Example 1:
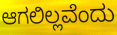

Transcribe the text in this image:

ಆಗಲಿಲ್ಲವೆಂದು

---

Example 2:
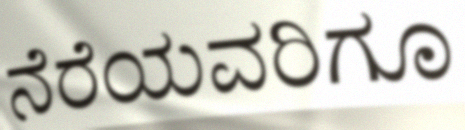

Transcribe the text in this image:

ನೆರೆಯವರಿಗೂ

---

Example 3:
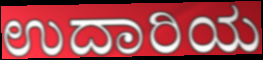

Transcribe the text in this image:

ಉದಾರಿಯ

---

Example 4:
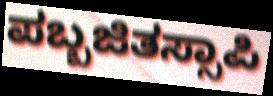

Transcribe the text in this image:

ಪಬ್ಬಜಿತಸ್ಸಾಪಿ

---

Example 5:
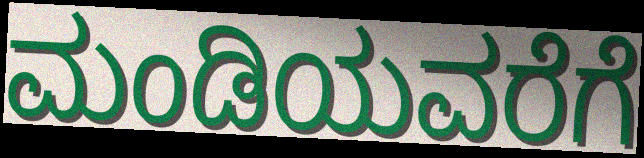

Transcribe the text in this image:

ಮಂಡಿಯವರೆಗೆ